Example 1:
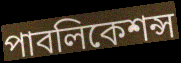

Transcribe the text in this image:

পাবলিকেশন্স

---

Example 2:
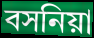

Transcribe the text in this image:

বসনিয়া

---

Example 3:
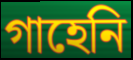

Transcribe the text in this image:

গাহেনি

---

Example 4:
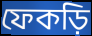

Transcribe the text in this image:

ফেকড়ি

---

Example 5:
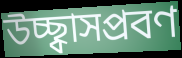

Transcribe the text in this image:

উচ্ছ্বাসপ্রবণ